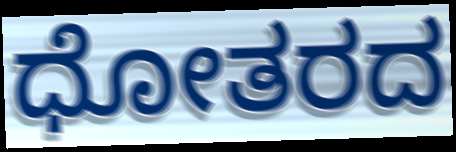
ಧೋತರದ